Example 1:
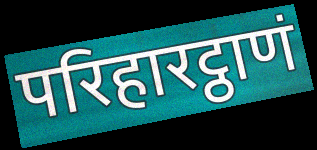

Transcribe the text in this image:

परिहारट्ठाणं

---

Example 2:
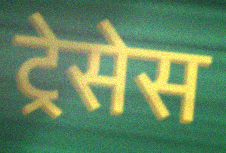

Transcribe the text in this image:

ट्रेसेस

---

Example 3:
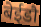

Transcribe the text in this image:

बेईडौ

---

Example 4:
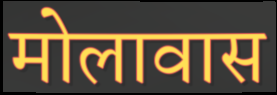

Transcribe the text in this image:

मोलावास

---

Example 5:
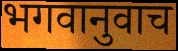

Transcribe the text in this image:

भगवानुवाच